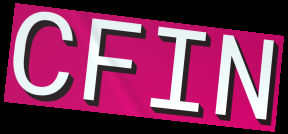
CFIN